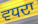
ਵਧਦਾ